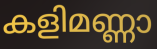
കളിമണ്ണാ